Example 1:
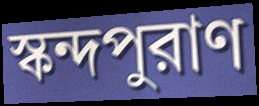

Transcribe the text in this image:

স্কন্দপুরাণ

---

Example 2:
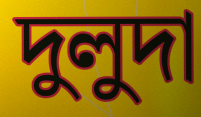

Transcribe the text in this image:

দুলুদা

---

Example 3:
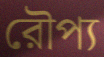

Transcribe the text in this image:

রৌপ্য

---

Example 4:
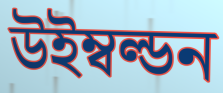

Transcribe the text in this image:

উইম্বল্ডন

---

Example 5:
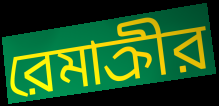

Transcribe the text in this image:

রেমাক্রীর